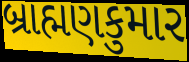
બ્રાહ્મણકુમાર